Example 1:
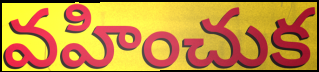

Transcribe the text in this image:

వహించుక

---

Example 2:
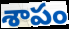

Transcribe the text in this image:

శాపం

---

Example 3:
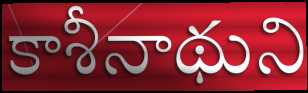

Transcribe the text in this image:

కాశీనాథుని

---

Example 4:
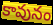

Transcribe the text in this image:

కావునం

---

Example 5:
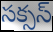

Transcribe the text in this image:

సక్సస్